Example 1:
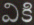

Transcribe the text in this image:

వికి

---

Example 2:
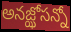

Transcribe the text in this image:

అనజ్ఝోసన్నో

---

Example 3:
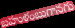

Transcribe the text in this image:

బహుళంబుగానగు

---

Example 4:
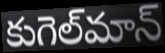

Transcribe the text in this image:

కుగెల్‌మాన్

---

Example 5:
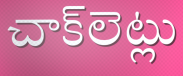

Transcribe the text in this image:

చాక్‌లెట్లు